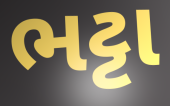
ભટ્ટા